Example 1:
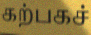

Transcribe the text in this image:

கற்பகச்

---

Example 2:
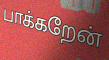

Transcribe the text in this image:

பாக்கறேன்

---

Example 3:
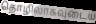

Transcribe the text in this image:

தொழிலாகவுடைய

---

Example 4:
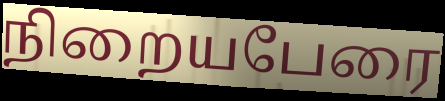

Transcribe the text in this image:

நிறையபேரை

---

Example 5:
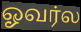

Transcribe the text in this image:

ஓவர்ல